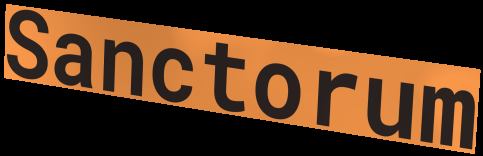
Sanctorum